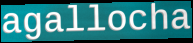
agallocha